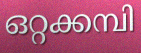
ഒറ്റക്കമ്പി